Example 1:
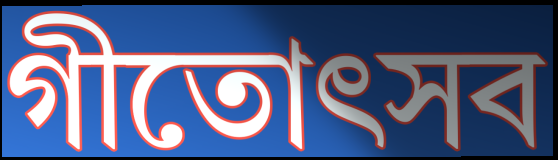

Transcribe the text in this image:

গীতোৎসব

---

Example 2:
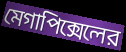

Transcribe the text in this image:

মেগাপিক্সেলের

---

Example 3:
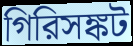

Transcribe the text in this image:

গিরিসঙ্কট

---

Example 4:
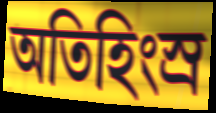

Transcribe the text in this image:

অতিহিংস্র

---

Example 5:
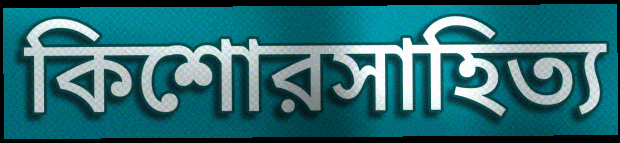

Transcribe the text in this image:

কিশোরসাহিত্য